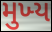
મુખ્‍ય